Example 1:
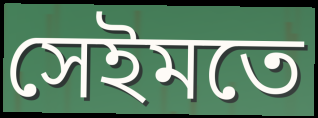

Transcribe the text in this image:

সেইমতে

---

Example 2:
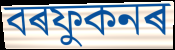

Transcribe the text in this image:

বৰফুকনৰ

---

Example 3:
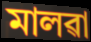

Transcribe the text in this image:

মালৱা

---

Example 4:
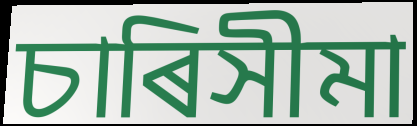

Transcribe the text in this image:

চাৰিসীমা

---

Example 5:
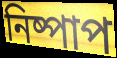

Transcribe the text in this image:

নিষ্পাপ